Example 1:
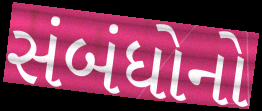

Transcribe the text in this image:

સંબંધોનો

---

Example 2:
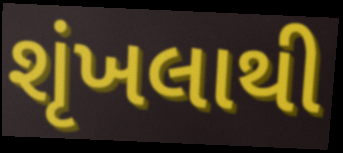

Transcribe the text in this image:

શૃંખલાથી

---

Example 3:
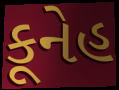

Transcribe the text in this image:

કૂનેહ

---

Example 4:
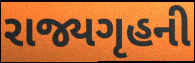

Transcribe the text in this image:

રાજ્યગૃહની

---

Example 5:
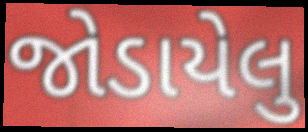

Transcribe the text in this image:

જોડાયેલુ